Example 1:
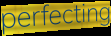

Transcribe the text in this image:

perfecting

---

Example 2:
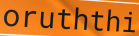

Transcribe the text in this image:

oruththi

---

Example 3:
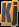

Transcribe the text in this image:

Kj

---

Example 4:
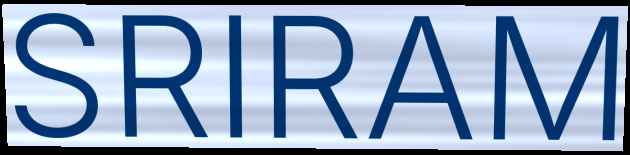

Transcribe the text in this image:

SRIRAM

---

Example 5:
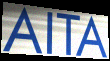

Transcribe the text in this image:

AITA